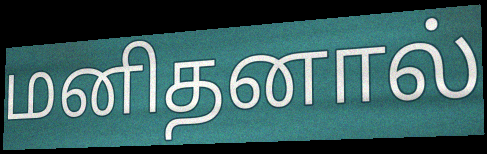
மனிதனால்